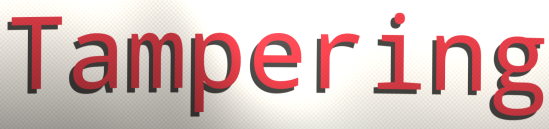
Tampering